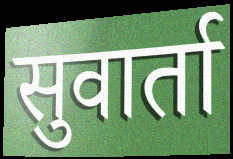
सुवार्ता